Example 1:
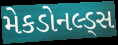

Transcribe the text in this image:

મેકડોનલ્ડ્સ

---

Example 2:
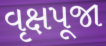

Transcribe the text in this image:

વૃક્ષપૂજા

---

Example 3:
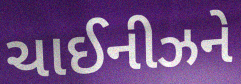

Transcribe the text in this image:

ચાઈનીઝને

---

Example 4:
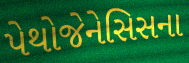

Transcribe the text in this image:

પેથોજેનેસિસના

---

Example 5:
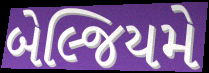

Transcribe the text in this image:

બેલ્જિયમે